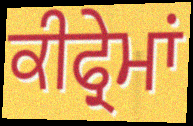
ਕੀਫ੍ਰੇਮਾਂ